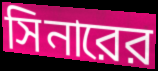
সিনারের